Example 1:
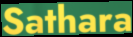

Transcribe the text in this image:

Sathara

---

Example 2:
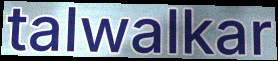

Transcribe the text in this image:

talwalkar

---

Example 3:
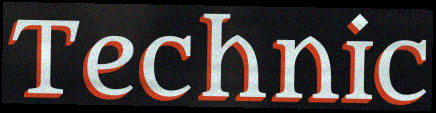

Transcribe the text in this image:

Technic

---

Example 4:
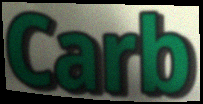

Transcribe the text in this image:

Carb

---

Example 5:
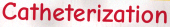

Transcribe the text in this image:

Catheterization